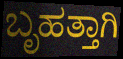
ಬೃಹತ್ತಾಗಿ